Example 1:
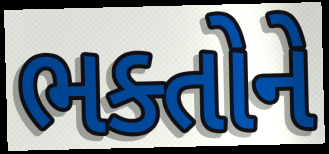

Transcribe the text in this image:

ભક્તોને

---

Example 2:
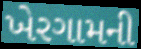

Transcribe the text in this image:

ખેરગામની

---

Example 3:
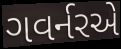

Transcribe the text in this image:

ગવર્નરએ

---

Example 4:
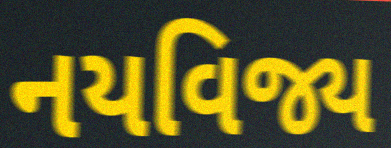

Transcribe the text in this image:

નયવિજ્ય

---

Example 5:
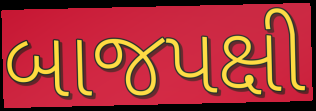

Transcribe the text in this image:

બાજપક્ષી